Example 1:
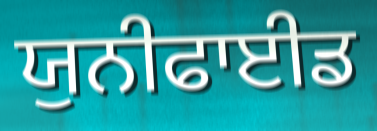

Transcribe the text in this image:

ਯੁਨੀਫਾਈਡ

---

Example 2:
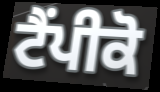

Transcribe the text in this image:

ਟੈਂਪੀਕੋ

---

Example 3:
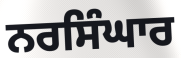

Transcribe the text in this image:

ਨਰਸਿੰਘਾਰ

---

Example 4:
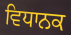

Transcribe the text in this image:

ਵਿਧਾਨਕ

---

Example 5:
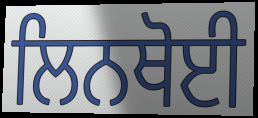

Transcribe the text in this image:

ਲਿਨਥੋਈ